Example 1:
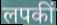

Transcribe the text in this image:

लपकीं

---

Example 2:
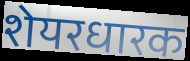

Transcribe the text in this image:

शेयरधारक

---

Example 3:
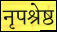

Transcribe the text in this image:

नृपश्रेष्ठ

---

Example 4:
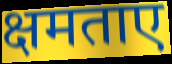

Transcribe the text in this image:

क्षमताए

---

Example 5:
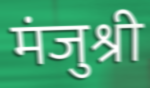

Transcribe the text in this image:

मंजुश्री